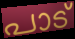
പാട്